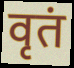
वृतं